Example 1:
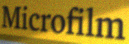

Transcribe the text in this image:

Microfilm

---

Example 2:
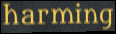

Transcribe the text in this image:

harming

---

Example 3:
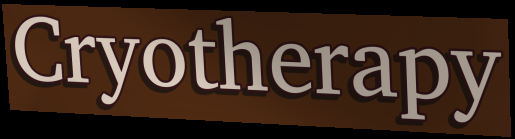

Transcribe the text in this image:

Cryotherapy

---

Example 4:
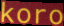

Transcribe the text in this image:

koro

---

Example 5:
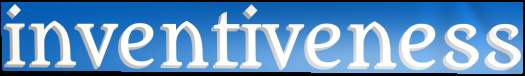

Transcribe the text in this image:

inventiveness